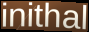
inithal